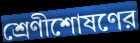
শ্রেণীশোষণের